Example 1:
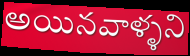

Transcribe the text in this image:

అయినవాళ్ళని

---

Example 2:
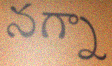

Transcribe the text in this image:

నగ్నా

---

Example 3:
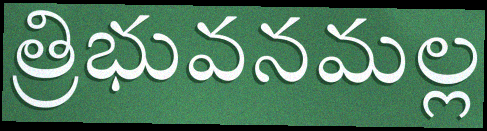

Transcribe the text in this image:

త్రిభువనమల్ల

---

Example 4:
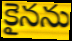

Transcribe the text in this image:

కైనను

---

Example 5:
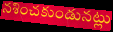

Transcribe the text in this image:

నశించకుండునట్లు